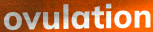
ovulation